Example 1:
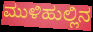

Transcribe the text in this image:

ಮುಳಿಹುಲ್ಲಿನ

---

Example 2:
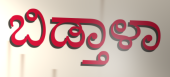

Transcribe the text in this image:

ಬಿಡ್ತಾಳಾ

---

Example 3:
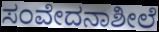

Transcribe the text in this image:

ಸಂವೇದನಾಶೀಲೆ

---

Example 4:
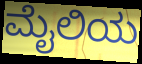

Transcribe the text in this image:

ಮೈಲಿಯ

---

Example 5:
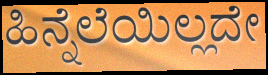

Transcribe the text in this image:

ಹಿನ್ನೆಲೆಯಿಲ್ಲದೇ